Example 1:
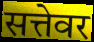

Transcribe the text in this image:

सत्तेवर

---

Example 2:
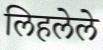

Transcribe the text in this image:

लिहलेले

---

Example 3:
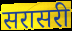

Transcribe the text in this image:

सरासरी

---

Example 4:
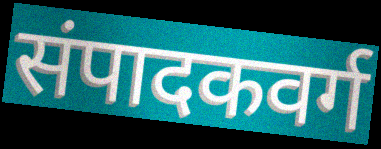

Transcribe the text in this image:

संपादकवर्ग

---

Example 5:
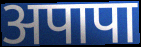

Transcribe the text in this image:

अपापा